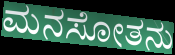
ಮನಸೋತನು